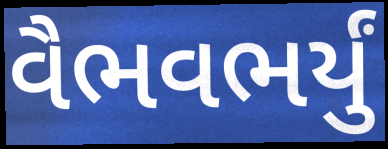
વૈભવભર્યું